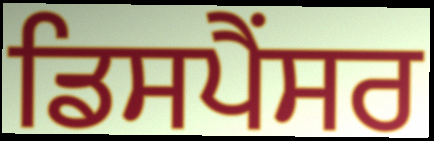
ਡਿਸਪੈਂਸਰ